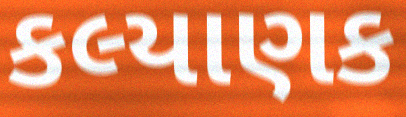
કલ્યાણક